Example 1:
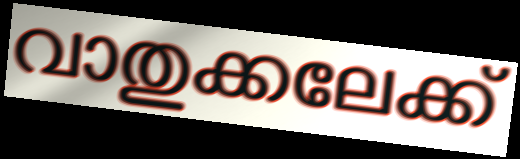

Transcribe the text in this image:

വാതുക്കലേക്ക്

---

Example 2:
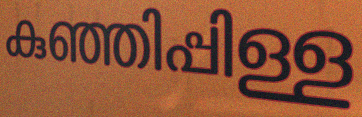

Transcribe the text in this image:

കുഞ്ഞിപ്പിള്ള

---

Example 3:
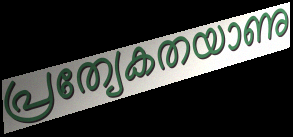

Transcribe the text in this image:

പ്രത്യേകതയാണു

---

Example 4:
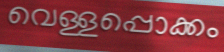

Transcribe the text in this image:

വെള്ളപ്പൊക്കം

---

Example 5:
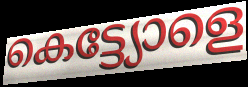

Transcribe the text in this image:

കെട്ട്യോളെ